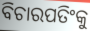
ବିଚାରପତିଂକୁ